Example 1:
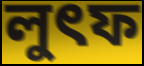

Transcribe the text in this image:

লুৎফ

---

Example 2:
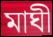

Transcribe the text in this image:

মাঘী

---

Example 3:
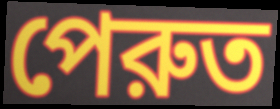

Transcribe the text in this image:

পেরুত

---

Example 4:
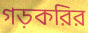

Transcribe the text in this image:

গড়করির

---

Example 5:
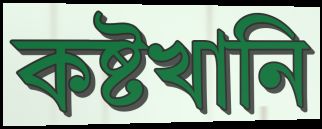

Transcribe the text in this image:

কষ্টখানি